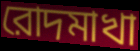
রোদমাখা